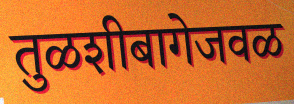
तुळशीबागेजवळ